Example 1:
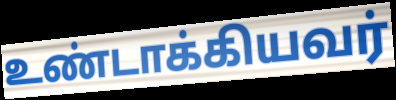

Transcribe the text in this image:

உண்டாக்கியவர்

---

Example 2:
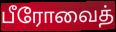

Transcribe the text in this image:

பீரோவைத்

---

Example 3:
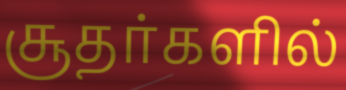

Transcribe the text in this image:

சூதர்களில்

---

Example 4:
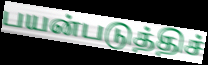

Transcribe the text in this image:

பயன்படுத்திச்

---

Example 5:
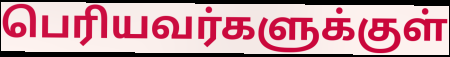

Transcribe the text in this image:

பெரியவர்களுக்குள்